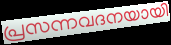
പ്രസന്നവദനയായി